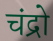
चंद्रो